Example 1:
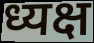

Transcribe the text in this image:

ध्यक्ष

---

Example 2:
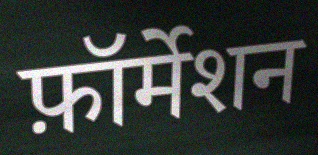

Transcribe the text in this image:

फ़ॉर्मेशन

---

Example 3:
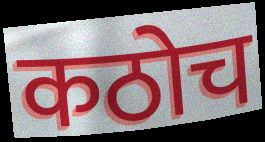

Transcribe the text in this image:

कठोच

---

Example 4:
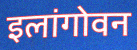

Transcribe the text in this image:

इलांगोवन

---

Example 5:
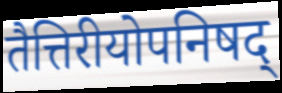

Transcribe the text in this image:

तैत्तिरीयोपनिषद्